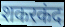
शकरकंद